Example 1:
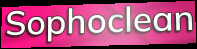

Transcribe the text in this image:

Sophoclean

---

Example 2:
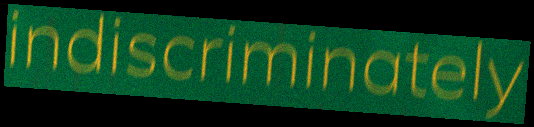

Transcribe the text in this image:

indiscriminately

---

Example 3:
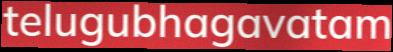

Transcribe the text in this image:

telugubhagavatam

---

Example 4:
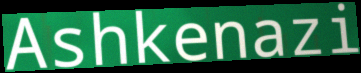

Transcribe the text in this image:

Ashkenazi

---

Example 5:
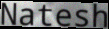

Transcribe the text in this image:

Natesh